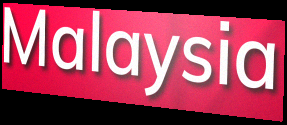
Malaysia